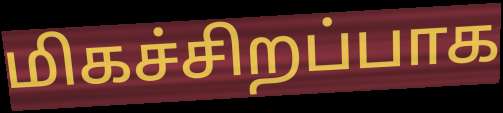
மிகச்சிறப்பாக